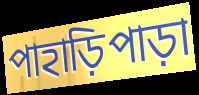
পাহাড়িপাড়া